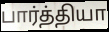
பார்த்தியா